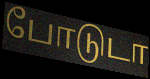
போடுடா